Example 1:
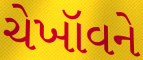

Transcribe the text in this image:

ચેખૉવને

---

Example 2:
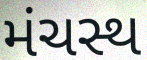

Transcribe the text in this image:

મંચસ્થ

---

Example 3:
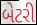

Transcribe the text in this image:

બેટરી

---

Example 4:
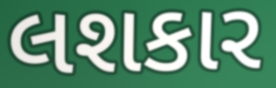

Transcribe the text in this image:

લશકાર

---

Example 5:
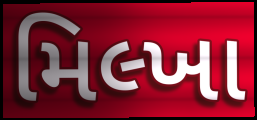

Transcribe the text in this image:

મિલ્ખા